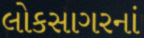
લોકસાગરનાં